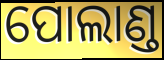
ପୋଲାଣ୍ଡ